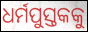
ଧର୍ମପୁସ୍ତକକୁ